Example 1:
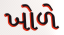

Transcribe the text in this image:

ખોળે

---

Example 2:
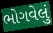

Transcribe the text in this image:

ભોગવેલું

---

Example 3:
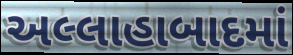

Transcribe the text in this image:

અલ્લાહાબાદમાં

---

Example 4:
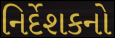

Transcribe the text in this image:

નિર્દેશકનો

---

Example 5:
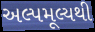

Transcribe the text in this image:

અલ્પમૂલ્યથી